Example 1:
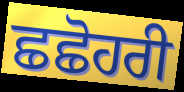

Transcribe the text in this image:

ਛਛੋਹਰੀ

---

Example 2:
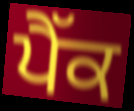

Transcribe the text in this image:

ਪੈੱਕ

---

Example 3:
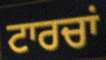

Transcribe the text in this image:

ਟਾਰਚਾਂ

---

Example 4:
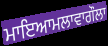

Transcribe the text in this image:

ਮਾਇਆਮਲਾਵਾਗੌਲਾ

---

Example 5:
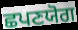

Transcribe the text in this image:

ਛਪਣਯੋਗ